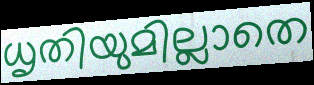
ധൃതിയുമില്ലാതെ